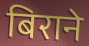
बिराने